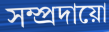
সম্প্ৰদায়ো